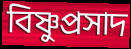
বিষ্ণুপ্ৰসাদ